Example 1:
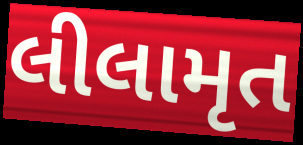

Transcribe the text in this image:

લીલામૃત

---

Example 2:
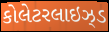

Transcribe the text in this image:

કોલેટરલાઇઝ્ડ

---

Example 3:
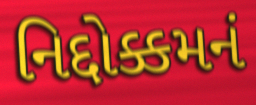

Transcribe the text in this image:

નિદ્દોક્કમનં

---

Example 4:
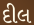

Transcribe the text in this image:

દીલ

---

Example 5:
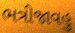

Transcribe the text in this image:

ભત્રીજાવહુ